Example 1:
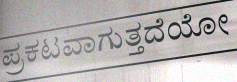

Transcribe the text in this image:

ಪ್ರಕಟವಾಗುತ್ತದೆಯೋ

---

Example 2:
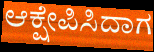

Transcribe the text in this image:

ಆಕ್ಷೇಪಿಸಿದಾಗ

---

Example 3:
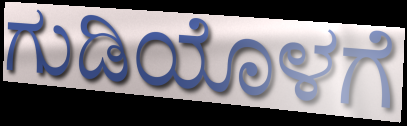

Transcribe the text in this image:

ಗುಡಿಯೊಳಗೆ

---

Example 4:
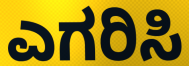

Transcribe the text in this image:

ಎಗರಿಸಿ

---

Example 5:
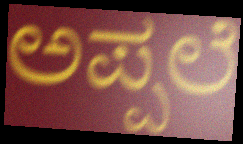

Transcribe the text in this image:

ಅಪ್ಪಲೆ